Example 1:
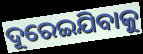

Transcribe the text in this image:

ଦୂରେଇଯିବାକୁ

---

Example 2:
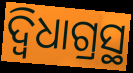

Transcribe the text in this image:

ଦ୍ବିଧାଗ୍ରସ୍ଥ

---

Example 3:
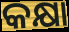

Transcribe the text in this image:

କକ୍ଷା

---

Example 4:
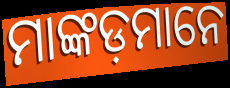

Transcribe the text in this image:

ମାଙ୍କଡ଼ମାନେ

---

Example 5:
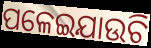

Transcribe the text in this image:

ପଳେଇଯାଉଚି